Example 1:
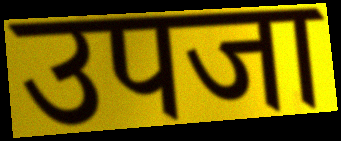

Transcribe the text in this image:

उपजा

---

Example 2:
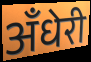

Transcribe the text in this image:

अँधेरी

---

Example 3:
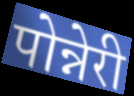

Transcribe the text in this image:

पोन्नेरी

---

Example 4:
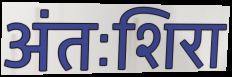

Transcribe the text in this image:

अंतःशिरा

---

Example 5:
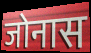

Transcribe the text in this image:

जोनास